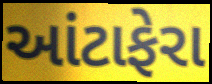
આંટાફેરા